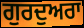
ਗੁਰਦੁਅਰਾ